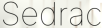
Sedrac